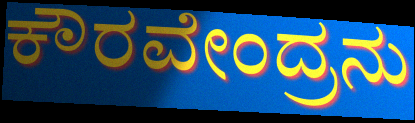
ಕೌರವೇಂದ್ರನು